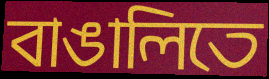
বাঙালিতে